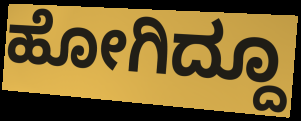
ಹೋಗಿದ್ದೂ